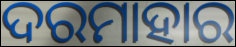
ଦରମାହାର